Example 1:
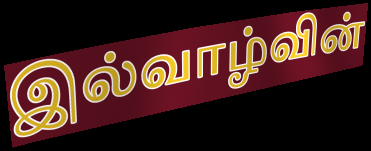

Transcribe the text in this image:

இல்வாழ்வின்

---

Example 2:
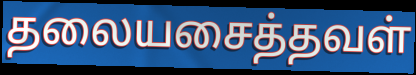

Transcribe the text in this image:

தலையசைத்தவள்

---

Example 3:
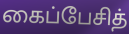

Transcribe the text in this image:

கைப்பேசித்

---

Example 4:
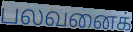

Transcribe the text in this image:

பலவனைக்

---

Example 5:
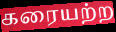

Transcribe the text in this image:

கரையற்ற